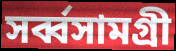
সর্ব্বসামগ্রী